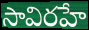
సావిరహే